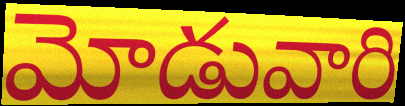
మోడువారి